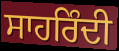
ਸਾਹਰਿੰਦੀ